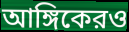
আঙ্গিকেরও